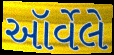
ઑર્વેલે